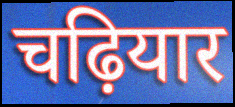
चढ़ियार